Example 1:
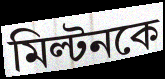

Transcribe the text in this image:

মিল্টনকে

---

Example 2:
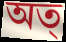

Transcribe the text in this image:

অত্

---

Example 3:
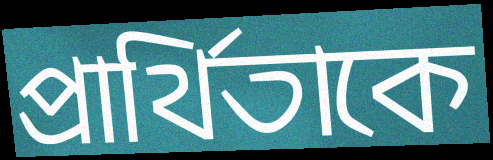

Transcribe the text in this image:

প্রার্থিতাকে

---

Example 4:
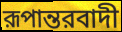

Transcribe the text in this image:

রূপান্তরবাদী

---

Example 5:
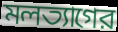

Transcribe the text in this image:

মলত্যাগের